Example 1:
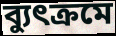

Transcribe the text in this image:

ব্যুৎক্রমে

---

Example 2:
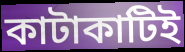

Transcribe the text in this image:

কাটাকাটিই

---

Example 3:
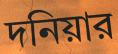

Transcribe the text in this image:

দনিয়ার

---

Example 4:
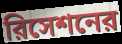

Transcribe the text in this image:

রিসেশনের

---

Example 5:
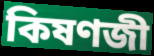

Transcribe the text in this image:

কিষণজী